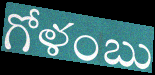
గోళంబు